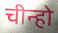
चीन्हो